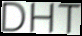
DHT